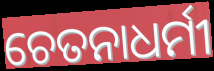
ଚେତନାଧର୍ମୀ